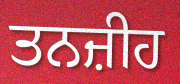
ਤਨਜ਼ੀਹ